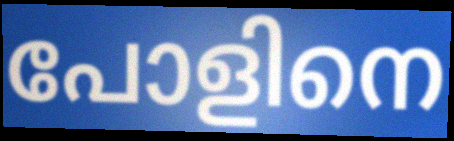
പോളിനെ